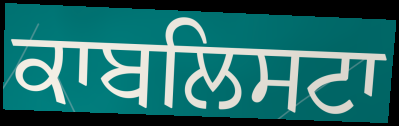
ਕਾਬਲਿਸਟਾ